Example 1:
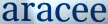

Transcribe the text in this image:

aracee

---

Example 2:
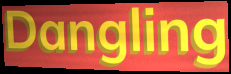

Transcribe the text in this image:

Dangling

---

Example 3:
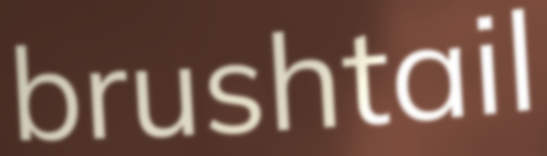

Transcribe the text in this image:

brushtail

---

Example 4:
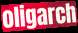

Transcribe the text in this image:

oligarch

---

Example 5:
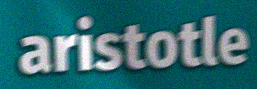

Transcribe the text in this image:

aristotle